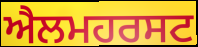
ਐਲਮਹਰਸਟ